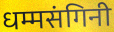
धम्मसंगिनी